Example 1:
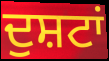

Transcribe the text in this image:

ਦੁਸ਼ਟਾਂ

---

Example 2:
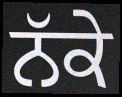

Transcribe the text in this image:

ਨੱਕੇ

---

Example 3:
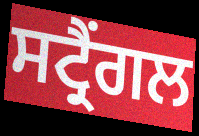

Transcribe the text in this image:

ਸਟ੍ਰੈਂਗਲ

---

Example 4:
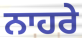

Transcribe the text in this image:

ਨਾਹਰੇ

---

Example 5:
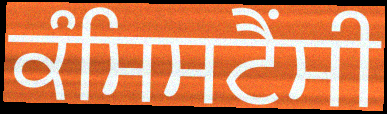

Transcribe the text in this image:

ਕੰਸਿਸਟੈਂਸੀ